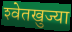
श्वेतखुज्या